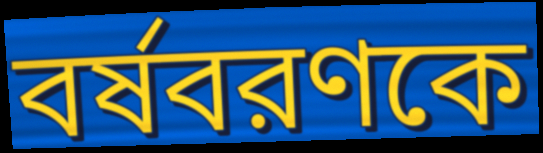
বর্ষবরণকে